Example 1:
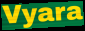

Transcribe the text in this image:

Vyara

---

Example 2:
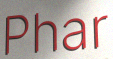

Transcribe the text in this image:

Phar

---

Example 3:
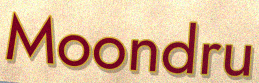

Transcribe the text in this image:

Moondru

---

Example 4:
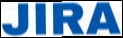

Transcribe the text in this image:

JIRA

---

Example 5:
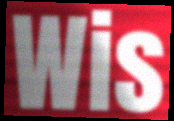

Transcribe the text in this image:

Wis